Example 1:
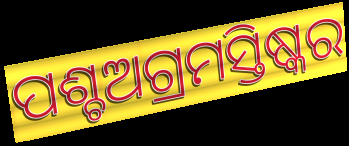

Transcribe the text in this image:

ପଶ୍ଚଅଗ୍ରମସ୍ତିଷ୍କର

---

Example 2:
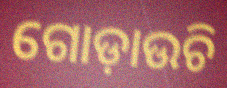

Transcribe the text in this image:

ଗୋଡ଼ାଉଚି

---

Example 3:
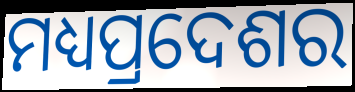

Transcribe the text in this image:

ମଧ୍ଯପ୍ରଦେଶର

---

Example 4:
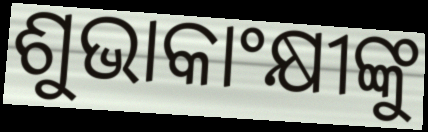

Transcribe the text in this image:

ଶୁଭାକାଂକ୍ଷୀଙ୍କୁ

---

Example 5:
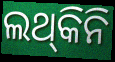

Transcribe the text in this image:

ଲଥ୍‍କିନି